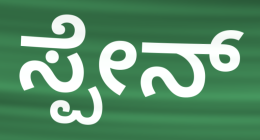
ಸ್ಪೇನ್